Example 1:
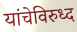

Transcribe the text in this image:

यांचेविरुध्द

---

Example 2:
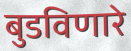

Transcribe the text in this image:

बुडविणारे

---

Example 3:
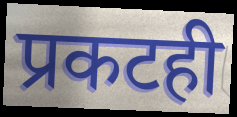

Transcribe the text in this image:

प्रकटही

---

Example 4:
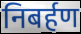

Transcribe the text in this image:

निबर्हण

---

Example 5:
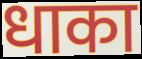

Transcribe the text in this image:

धाका